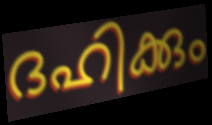
ദഹിക്കും